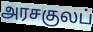
அரசகுலப்